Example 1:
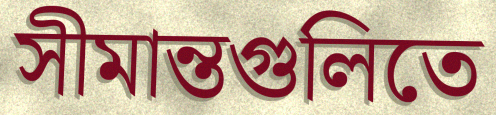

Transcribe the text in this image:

সীমান্তগুলিতে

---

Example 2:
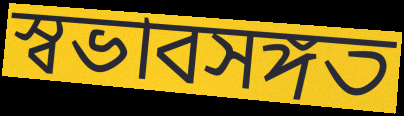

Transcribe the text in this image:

স্বভাবসঙ্গত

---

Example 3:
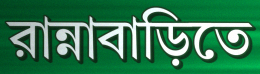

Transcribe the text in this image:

রান্নাবাড়িতে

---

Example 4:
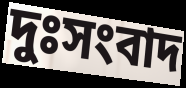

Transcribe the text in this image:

দুঃসংবাদ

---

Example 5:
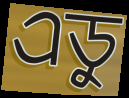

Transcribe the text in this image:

এডু